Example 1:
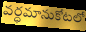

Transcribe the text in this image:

వర్ధమానుకోటలో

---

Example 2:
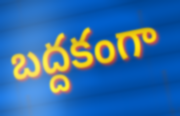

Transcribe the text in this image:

బద్దకంగా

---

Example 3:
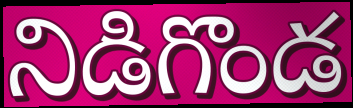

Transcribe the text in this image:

నిడిగొండ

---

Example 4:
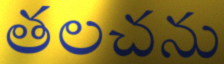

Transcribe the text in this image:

తలచను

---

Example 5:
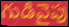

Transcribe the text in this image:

గుడివైపు